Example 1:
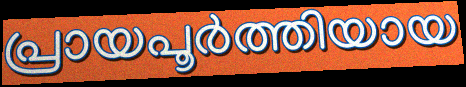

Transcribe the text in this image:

പ്രായപൂർത്തിയായ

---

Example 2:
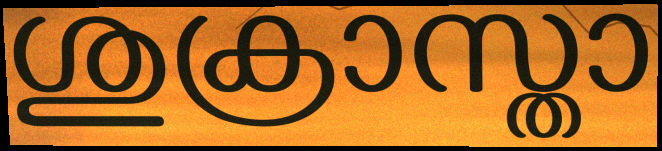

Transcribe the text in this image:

ശുക്രാസ്താ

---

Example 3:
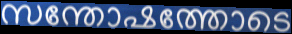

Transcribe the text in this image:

സന്തോഷത്തോടെ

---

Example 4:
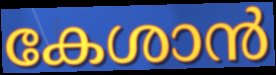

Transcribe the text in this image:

കേശാൻ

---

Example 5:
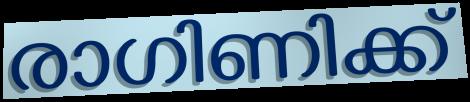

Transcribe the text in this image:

രാഗിണിക്ക്